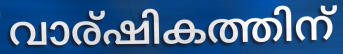
വാര്ഷികത്തിന്